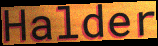
Halder